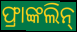
ଫ୍ରାଙ୍କଲିନ୍